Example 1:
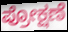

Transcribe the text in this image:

ಪ್ರೋಕ್ಷಣೆ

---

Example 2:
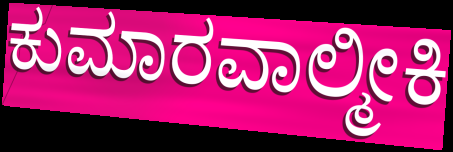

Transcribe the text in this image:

ಕುಮಾರವಾಲ್ಮೀಕಿ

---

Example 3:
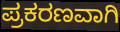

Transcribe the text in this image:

ಪ್ರಕರಣವಾಗಿ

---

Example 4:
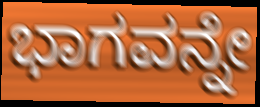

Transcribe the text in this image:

ಭಾಗವನ್ನೇ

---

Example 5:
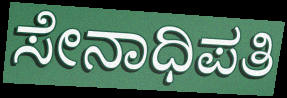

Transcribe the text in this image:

ಸೇನಾಧಿಪತಿ